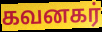
கவனகர்